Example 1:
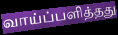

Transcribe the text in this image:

வாய்ப்பளித்தது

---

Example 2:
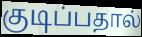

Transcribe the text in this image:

குடிப்பதால்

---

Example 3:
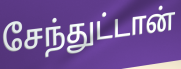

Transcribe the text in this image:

சேந்துட்டான்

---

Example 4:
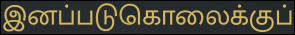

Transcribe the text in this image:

இனப்படுகொலைக்குப்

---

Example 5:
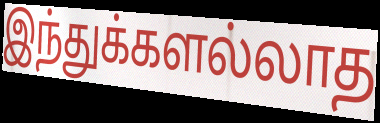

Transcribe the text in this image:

இந்துக்களல்லாத